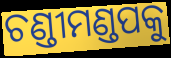
ଚଣ୍ଡୀମଣ୍ଡପକୁ